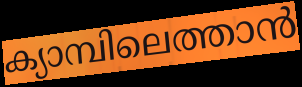
ക്യാമ്പിലെത്താൻ